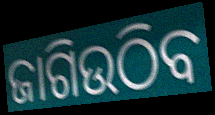
ଜାଗିଉଠିବ